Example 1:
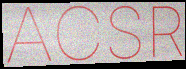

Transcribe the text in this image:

ACSR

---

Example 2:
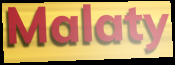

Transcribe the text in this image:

Malaty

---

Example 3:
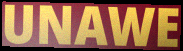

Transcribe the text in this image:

UNAWE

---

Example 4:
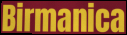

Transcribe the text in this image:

Birmanica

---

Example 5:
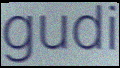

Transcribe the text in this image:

gudi